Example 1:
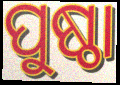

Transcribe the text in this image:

ପୁଷ୍ଠା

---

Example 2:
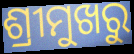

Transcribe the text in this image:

ଶ୍ରୀମୁଖରୁ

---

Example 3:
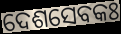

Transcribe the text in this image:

ଦେଶସେବକଃ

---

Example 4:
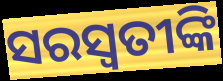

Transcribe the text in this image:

ସରସ୍ୱତୀଙ୍କି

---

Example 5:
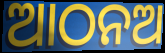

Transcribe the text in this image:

ଆଠନଅ